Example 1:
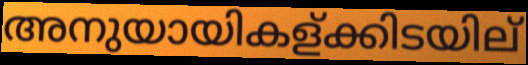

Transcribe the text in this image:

അനുയായികള്ക്കിടയില്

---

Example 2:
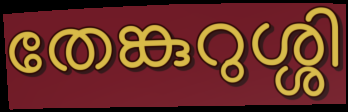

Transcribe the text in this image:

തേങ്കുറുശ്ശി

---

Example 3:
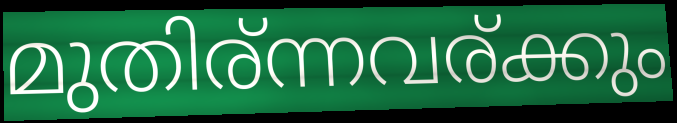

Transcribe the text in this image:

മുതിര്ന്നവര്ക്കും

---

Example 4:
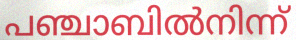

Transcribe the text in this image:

പഞ്ചാബിൽനിന്ന്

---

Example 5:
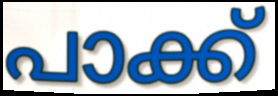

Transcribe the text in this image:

പാക്ക്